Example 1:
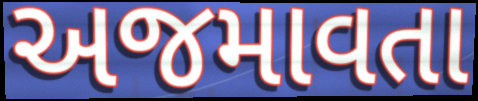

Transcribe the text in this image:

અજમાવતા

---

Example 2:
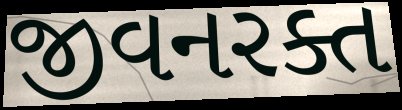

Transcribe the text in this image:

જીવનરક્ત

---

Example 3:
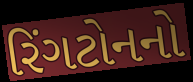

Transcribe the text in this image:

રિંગટોનનો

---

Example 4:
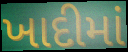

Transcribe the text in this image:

ખાદીમાં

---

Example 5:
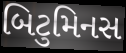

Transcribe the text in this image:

બિટુમિનસ